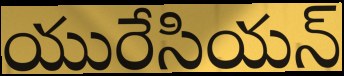
యురేసియన్